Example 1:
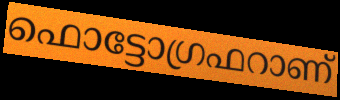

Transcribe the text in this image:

ഫൊട്ടോഗ്രഫറാണ്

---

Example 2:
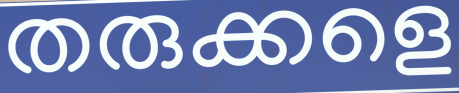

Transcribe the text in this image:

തരുക്കളെ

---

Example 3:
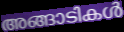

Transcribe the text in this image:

അങ്ങാടികൾ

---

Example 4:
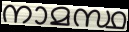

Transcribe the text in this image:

നാമസ്ഥ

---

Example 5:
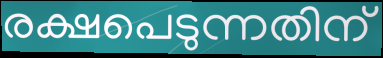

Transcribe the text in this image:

രക്ഷപെടുന്നതിന്